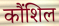
कौंशिल